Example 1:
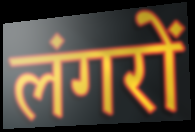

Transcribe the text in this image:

लंगरों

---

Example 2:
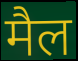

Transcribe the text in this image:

मैल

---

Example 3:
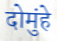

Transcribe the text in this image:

दोमुंहे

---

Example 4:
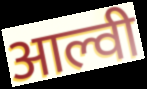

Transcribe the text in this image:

आल्वी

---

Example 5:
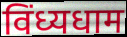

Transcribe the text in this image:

विंध्यधाम